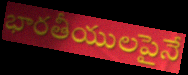
భారతీయులపైనే